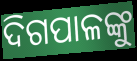
ଦିଗପାଳଙ୍କୁ